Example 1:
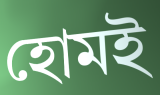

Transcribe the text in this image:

হোমই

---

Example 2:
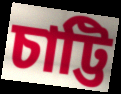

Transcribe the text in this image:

চাট্টি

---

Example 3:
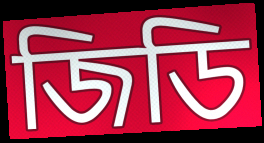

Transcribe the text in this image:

জিডি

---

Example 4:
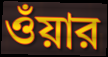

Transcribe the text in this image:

ওঁয়ার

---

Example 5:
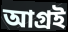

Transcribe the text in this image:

আগ্রই